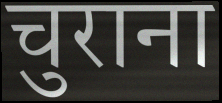
चुराना